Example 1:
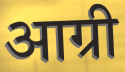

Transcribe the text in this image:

आग्री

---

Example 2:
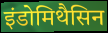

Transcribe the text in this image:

इंडोमिथैसिन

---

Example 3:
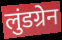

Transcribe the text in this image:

लुंडग्रेन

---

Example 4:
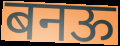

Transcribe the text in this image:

बनऊ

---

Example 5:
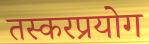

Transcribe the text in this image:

तस्करप्रयोग